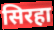
सिरहा